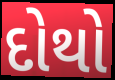
દોથો